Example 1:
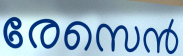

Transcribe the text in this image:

രേസെൻ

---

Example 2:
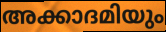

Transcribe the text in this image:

അക്കാദമിയും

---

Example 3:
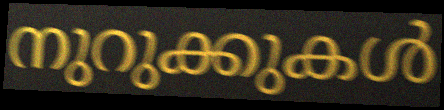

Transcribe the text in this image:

നുറുക്കുകൾ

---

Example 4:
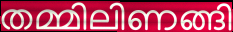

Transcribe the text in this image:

തമ്മിലിണങ്ങി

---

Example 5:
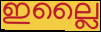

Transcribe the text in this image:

ഇല്ലൈ